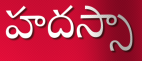
హదస్సా